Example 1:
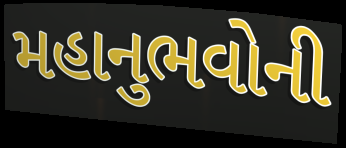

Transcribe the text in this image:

મહાનુભવોની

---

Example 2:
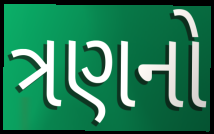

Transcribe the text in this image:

ત્રણનો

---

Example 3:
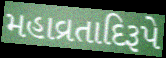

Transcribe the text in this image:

મહાવ્રતાદિરૂપે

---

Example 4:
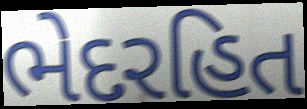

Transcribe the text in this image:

ભેદરહિત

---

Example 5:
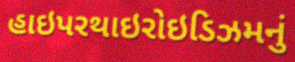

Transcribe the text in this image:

હાઇપરથાઇરોઇડિઝમનું